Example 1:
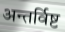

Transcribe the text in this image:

अन्तर्विष्ट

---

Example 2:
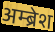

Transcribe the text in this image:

अम्ब्रेश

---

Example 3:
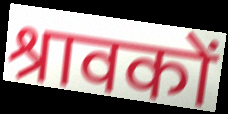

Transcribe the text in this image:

श्रावकों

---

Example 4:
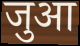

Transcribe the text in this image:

जुआ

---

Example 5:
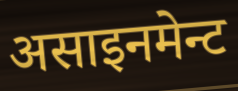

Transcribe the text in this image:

असाइनमेन्ट